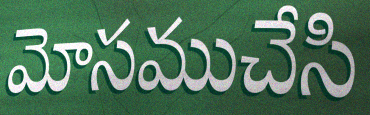
మోసముచేసి